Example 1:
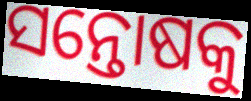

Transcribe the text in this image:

ସନ୍ତୋଷକୁ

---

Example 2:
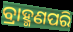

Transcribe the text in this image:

ବ୍ରାହ୍ମଣପରି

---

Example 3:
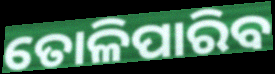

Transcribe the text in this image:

ତୋଳିପାରିବ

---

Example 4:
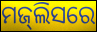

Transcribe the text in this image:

ମଜ୍‍ଲିସରେ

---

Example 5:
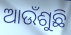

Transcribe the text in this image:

ଆଉଁଶୁଛି